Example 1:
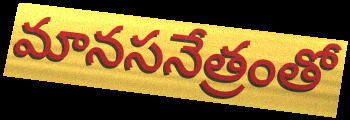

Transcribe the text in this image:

మానసనేత్రంతో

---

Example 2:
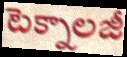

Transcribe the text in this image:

టెక్నాలజీ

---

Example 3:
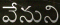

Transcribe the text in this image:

వేనుని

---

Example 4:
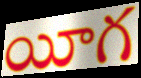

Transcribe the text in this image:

యీగ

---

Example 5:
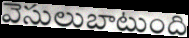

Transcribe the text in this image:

వెసులుబాటుంది